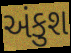
અંકુશ